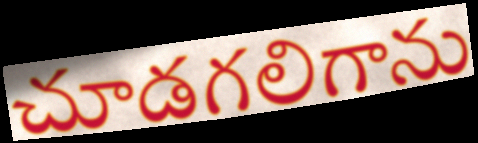
చూడగలిగాను